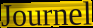
Journel